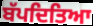
ਬੱਪਦਿਤਿਆ